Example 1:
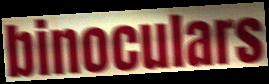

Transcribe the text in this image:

binoculars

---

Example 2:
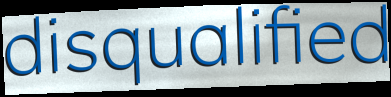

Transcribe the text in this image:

disqualified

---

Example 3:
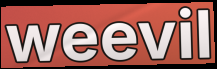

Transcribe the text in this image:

weevil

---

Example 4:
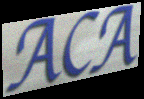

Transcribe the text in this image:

ACA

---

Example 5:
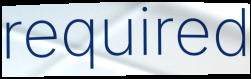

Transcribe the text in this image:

required